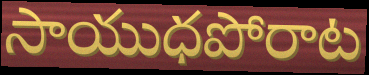
సాయుధపోరాట